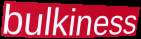
bulkiness